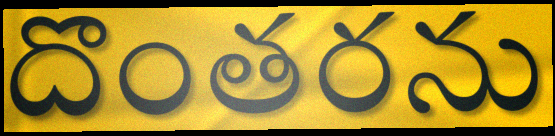
దొంతరను